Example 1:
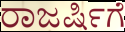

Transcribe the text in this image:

ರಾಜರ್ಷಿಗೆ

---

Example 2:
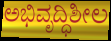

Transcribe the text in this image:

ಅಭಿವೃದ್ಧಿಶೀಲ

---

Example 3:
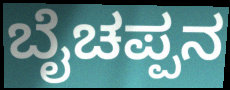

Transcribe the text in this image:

ಬೈಚಪ್ಪನ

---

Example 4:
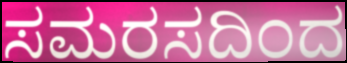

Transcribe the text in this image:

ಸಮರಸದಿಂದ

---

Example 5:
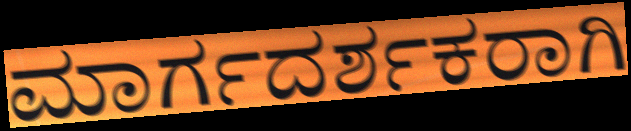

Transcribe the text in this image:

ಮಾರ್ಗದರ್ಶಕರಾಗಿ